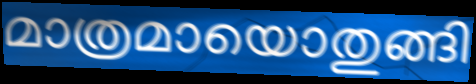
മാത്രമായൊതുങ്ങി